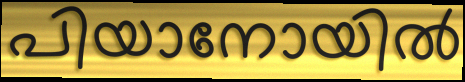
പിയാനോയിൽ